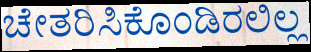
ಚೇತರಿಸಿಕೊಂಡಿರಲಿಲ್ಲ